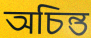
অচিন্ত